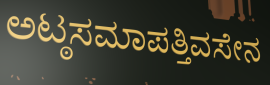
ಅಟ್ಠಸಮಾಪತ್ತಿವಸೇನ